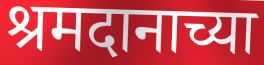
श्रमदानाच्या